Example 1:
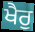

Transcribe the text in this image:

ਖੈਰੁ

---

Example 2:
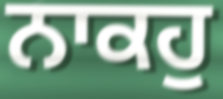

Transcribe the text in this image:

ਨਾਕਹੁ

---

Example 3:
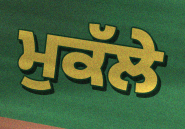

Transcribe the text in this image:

ਮੁਕੱਲੇ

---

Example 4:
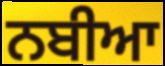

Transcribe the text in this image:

ਨਬੀਆ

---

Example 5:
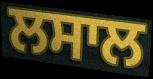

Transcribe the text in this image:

ਲਸਾਲ